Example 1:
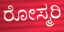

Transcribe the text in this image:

ರೋಸ್ಮರಿ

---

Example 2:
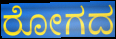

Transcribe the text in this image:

ರೋಗದ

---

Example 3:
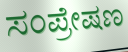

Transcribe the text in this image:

ಸಂಪ್ರೇಷಣ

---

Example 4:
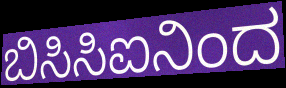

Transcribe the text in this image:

ಬಿಸಿಸಿಐನಿಂದ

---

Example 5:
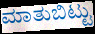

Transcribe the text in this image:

ಮಾತುಬಿಟ್ಟು